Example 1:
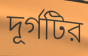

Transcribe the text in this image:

দূর্গটির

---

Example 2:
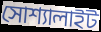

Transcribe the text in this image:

সোশ্যালাইট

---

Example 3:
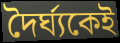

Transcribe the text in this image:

দৈর্ঘ্যকেই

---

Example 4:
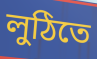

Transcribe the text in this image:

লুঠিতে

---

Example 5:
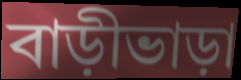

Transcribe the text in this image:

বাড়ীভাড়া